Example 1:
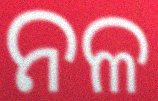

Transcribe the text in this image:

ନଳ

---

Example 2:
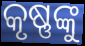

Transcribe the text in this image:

କୃଷ୍ଣଙ୍କୁ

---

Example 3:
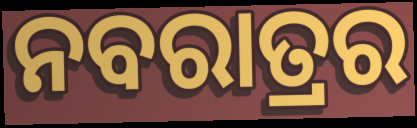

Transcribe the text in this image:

ନବରାତ୍ରର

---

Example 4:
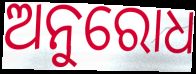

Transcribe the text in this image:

ଅନୁରୋଧ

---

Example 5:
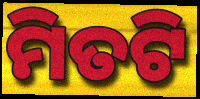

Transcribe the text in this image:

ମିତଟି